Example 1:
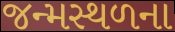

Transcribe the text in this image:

જન્મસ્થળના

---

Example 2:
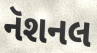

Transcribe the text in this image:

નૅશનલ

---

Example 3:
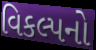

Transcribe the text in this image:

વિકલ્પનો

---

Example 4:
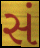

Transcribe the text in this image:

સં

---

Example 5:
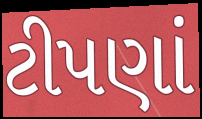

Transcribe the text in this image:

ટીપણાં